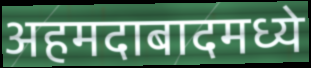
अहमदाबादमध्ये